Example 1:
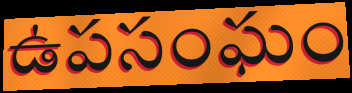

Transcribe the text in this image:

ఉపసంఘం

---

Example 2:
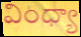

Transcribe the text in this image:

వింధ్యా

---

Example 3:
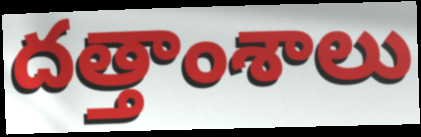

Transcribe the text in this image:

దత్తాంశాలు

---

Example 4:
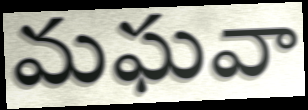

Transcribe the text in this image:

మఘవా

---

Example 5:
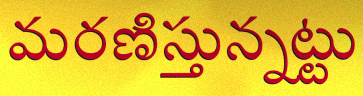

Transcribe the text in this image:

మరణిస్తున్నట్టు